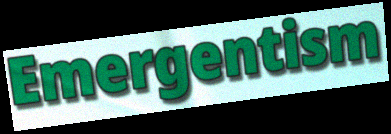
Emergentism